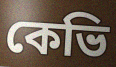
কেভি